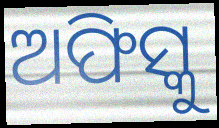
ଅଫିସ୍କୁ